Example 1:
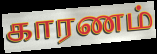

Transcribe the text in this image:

காரணம்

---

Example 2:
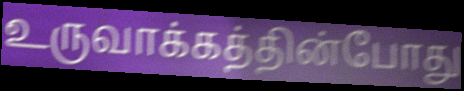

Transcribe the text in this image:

உருவாக்கத்தின்போது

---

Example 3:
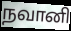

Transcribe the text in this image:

நவானி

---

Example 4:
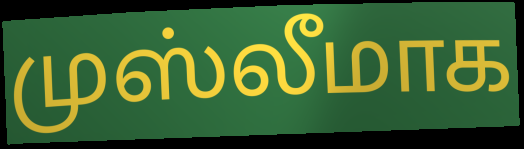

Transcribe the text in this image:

முஸ்லீமாக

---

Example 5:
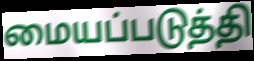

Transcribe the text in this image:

மையப்படுத்தி